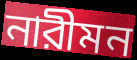
নারীমন